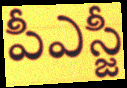
పీఎస్జీ